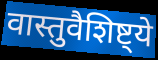
वास्तुवैशिष्ट्ये